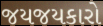
જયજયકારો